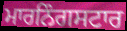
ਮਾਰਨਿੰਗਸਟਾਰ